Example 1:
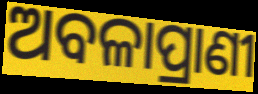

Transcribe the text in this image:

ଅବଳାପ୍ରାଣୀ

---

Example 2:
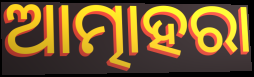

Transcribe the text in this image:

ଆତ୍ମାହରା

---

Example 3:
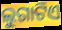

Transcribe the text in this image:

ଲୁଗାଟିଏ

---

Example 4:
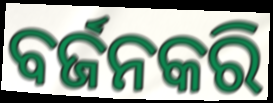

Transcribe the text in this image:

ବର୍ଜନକରି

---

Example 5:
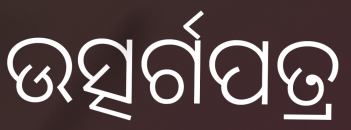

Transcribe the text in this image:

ଉତ୍ସର୍ଗପତ୍ର